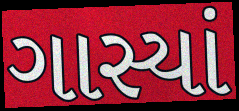
ગાસ્યાં